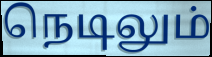
நெடிலும்